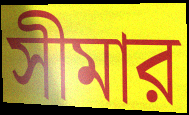
সীমার